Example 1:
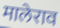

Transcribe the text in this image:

मालेराव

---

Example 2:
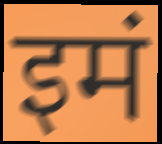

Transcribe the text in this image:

इमं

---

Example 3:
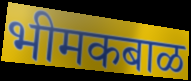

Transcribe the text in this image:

भीमकबाळ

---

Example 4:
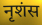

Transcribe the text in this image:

नृशंस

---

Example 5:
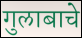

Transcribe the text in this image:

गुलाबाचे